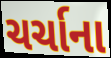
ચર્ચાના